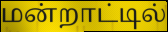
மன்றாட்டில்